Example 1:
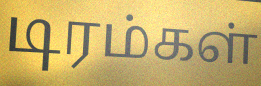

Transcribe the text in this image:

டிரம்கள்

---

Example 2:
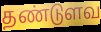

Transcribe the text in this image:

தண்டுளவ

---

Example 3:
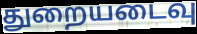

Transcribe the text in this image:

துறையடைவு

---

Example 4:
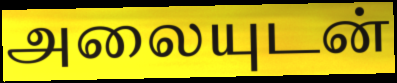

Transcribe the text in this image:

அலையுடன்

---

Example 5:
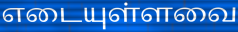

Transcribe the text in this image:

எடையுள்ளவை